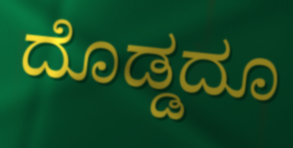
ದೊಡ್ಡದೂ